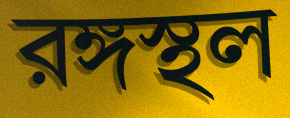
রঙ্গস্থল